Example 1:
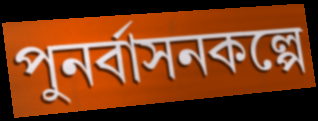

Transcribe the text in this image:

পুনর্বাসনকল্পে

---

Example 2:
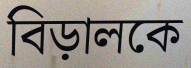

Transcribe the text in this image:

বিড়ালকে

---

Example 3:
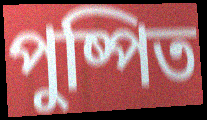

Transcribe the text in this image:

পুষ্পিত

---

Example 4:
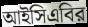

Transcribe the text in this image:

আইসিএবির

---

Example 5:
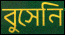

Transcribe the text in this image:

বুসেনি